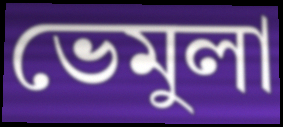
ভেমুলা